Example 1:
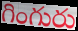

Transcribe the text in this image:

గింగురు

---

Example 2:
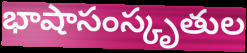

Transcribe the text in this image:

భాషాసంస్కృతుల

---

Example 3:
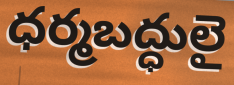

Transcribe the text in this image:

ధర్మబద్ధులై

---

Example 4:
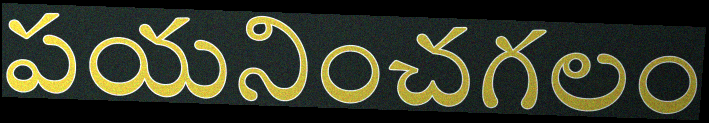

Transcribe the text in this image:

పయనించగలం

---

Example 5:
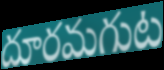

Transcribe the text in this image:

దూరమగుట